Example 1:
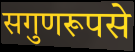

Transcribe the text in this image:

सगुणरूपसे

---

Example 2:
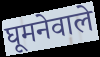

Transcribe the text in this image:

घूमनेवाले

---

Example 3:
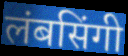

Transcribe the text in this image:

लंबसिंगी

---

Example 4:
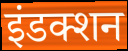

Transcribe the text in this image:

इंडक्शन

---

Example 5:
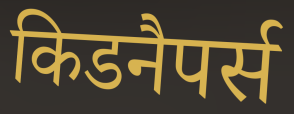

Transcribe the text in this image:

किडनैपर्स